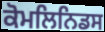
ਕੋਮਲਿਨਿਡਸ